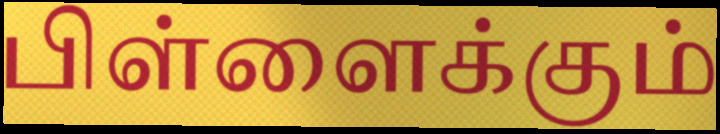
பிள்ளைக்கும்